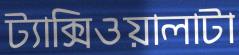
ট্যাক্সিওয়ালাটা